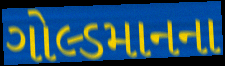
ગોલ્ડમાનના